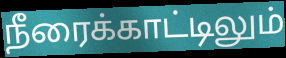
நீரைக்காட்டிலும்